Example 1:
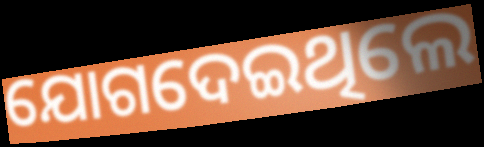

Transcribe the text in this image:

ଯୋଗଦେଇଥିଲେ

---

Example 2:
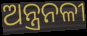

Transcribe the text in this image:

ଅନ୍ତ୍ରନଳୀ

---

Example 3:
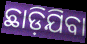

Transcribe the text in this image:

ଛାଡ଼ିଯିବା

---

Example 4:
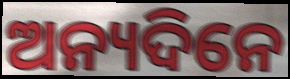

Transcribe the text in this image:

ଅନ୍ୟଦିନେ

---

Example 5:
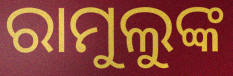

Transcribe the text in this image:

ରାମୁଲୁଙ୍କ